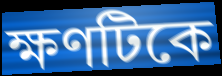
ক্ষণটিকে